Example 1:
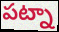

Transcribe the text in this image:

పట్నా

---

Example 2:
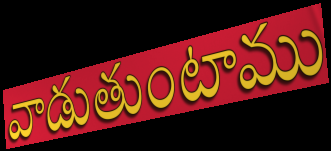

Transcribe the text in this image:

వాడుతుంటాము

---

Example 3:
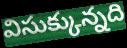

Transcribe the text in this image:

విసుక్కున్నది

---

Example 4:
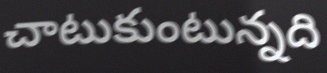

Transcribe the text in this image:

చాటుకుంటున్నది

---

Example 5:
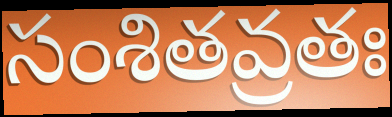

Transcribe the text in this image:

సంశితవ్రతః